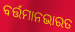
ବର୍ତ୍ତମାନଭାରତ